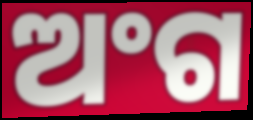
ଅଂଗ